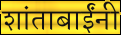
शांताबाईंनी